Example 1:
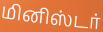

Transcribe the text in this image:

மினிஸ்டர்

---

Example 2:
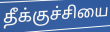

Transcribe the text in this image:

தீக்குச்சியை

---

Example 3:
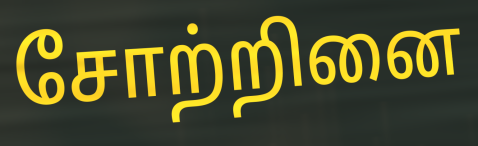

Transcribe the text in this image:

சோற்றினை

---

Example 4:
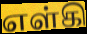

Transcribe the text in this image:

எள்கி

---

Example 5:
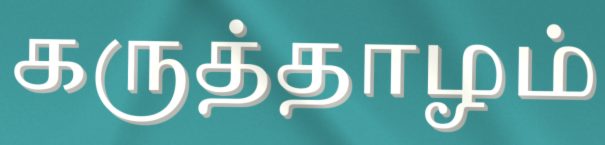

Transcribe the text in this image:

கருத்தாழம்